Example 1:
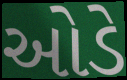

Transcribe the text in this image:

ઓડે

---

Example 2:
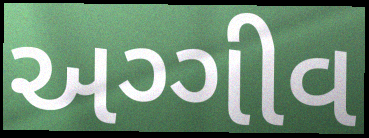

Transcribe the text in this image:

અગ્ગીવ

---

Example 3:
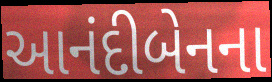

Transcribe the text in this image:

આનંદીબેનના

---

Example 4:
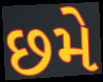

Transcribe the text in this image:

છમે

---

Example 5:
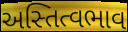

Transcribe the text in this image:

અસ્તિત્વભાવ